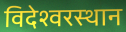
विदेश्वरस्थान